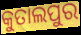
କୁତାଲପୁର